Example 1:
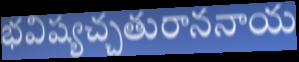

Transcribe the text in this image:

భవిష్యచ్చతురాననాయ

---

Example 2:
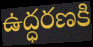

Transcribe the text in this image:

ఉద్ధరణకి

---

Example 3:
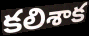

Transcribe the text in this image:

కలిశాక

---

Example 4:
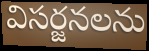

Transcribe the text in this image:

విసర్జనలను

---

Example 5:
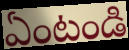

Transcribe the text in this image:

ఏంటండి